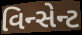
વિન્સેન્ટ